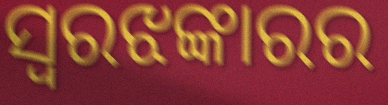
ସ୍ୱରଝଙ୍କାରର